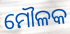
ମୌଳକ